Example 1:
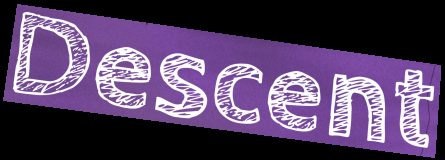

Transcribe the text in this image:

Descent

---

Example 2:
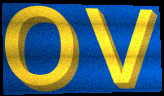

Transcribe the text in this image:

ov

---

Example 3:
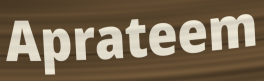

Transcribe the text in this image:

Aprateem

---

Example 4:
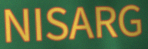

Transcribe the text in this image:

NISARG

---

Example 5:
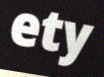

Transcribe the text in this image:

ety